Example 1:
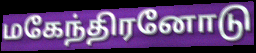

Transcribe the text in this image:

மகேந்திரனோடு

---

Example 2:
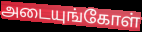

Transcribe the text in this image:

அடையுங்கோள்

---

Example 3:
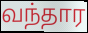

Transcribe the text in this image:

வந்தார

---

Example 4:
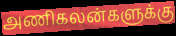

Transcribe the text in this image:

அணிகலன்களுக்கு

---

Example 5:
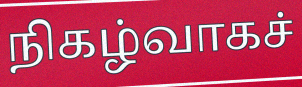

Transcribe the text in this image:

நிகழ்வாகச்